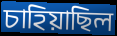
চাহিয়াছিল